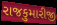
રાજકુમારીજી